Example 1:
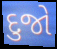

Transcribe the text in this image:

દુજો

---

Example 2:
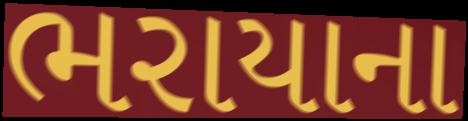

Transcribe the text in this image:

ભરાયાના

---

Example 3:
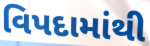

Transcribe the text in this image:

વિપદામાંથી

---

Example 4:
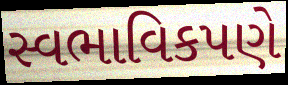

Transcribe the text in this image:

સ્વભાવિકપણે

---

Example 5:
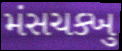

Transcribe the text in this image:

મંસચક્ખુ